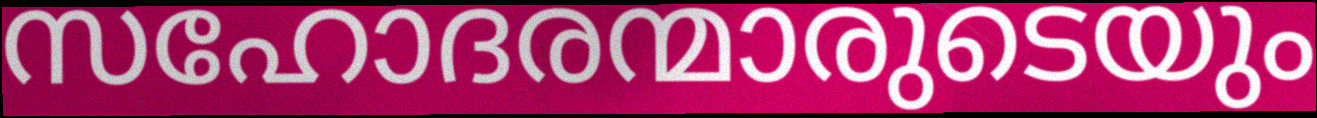
സഹോദരന്മാരുടെയും